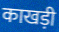
काखड़ी